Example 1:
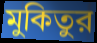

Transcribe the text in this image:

মুকিতুর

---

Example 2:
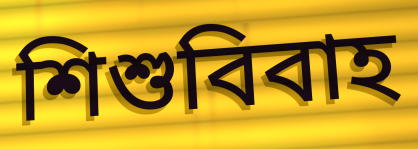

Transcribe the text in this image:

শিশুবিবাহ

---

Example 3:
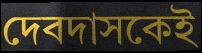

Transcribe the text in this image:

দেবদাসকেই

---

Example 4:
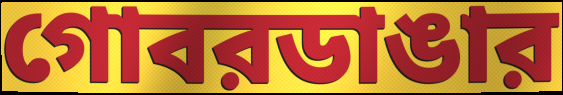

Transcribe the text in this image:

গোবরডাঙার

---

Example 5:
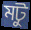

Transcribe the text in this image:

মটু